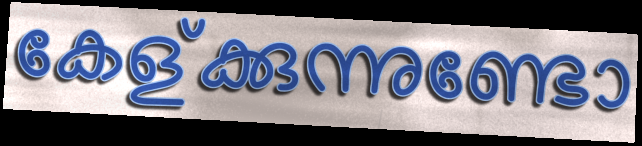
കേള്ക്കുന്നുണ്ടോ